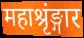
महाश्रृंङ्गार